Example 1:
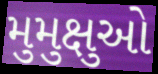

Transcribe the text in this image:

મુમુક્ષુઓ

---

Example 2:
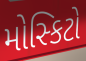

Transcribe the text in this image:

મોસ્કિટો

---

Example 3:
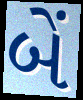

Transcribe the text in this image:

બેં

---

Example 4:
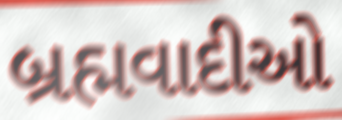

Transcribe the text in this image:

બ્રહ્મવાદીઓ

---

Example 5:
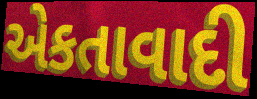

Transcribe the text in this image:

એકતાવાદી